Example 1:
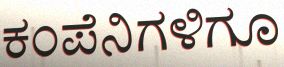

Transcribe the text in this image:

ಕಂಪೆನಿಗಳಿಗೂ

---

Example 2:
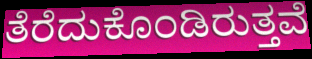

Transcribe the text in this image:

ತೆರೆದುಕೊಂಡಿರುತ್ತವೆ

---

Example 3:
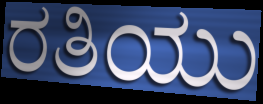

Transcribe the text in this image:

ರತಿಯು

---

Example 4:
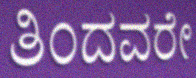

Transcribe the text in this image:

ತಿಂದವರೇ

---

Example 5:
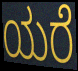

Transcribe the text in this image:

ಯರೆ